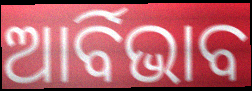
ଆର୍ବିଭାବ